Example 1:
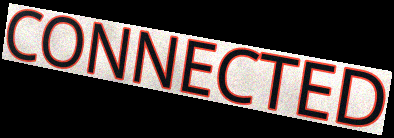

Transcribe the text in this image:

CONNECTED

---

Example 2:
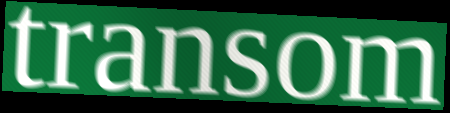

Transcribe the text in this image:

transom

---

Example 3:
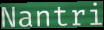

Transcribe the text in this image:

Nantri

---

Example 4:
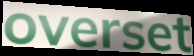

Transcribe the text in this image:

overset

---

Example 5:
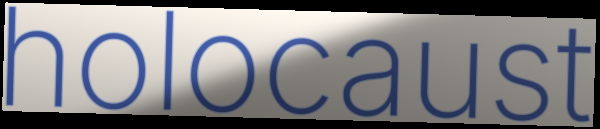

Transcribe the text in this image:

holocaust